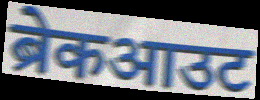
ब्रेकआउट